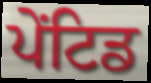
ਪੇਂਟਿਡ